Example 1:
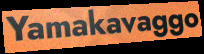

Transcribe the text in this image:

Yamakavaggo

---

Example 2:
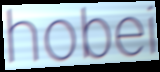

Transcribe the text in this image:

hobei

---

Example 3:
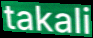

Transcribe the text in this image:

takali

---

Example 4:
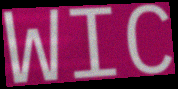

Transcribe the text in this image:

WIC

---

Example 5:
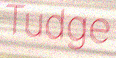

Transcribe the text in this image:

Tudge